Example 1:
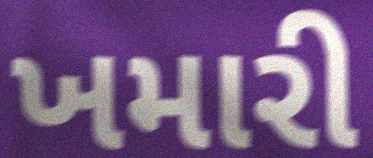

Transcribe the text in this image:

ખમારી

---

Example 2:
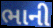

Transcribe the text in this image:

ભાની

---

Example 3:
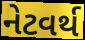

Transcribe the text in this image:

નેટવર્થ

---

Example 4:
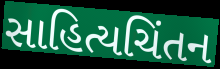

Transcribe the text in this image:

સાહિત્યચિંતન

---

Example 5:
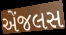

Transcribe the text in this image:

એંજલસ